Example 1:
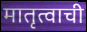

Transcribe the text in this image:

मातृत्वाची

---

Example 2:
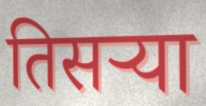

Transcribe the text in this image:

तिसऱ्या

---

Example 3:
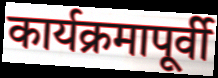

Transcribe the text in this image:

कार्यक्रमापूर्वी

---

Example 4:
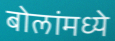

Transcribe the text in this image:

बोलांमध्ये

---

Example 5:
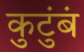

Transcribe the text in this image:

कुटुंबं